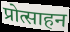
प्रोत्‍साहन